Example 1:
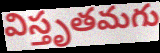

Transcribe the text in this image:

విస్తృతమగు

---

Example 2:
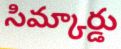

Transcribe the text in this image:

సిమ్కార్డు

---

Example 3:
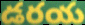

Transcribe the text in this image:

డరయ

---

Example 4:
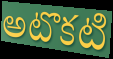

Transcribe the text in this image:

అటొకటి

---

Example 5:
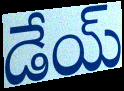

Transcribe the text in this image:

డేయ్